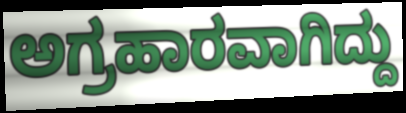
ಅಗ್ರಹಾರವಾಗಿದ್ದು